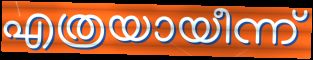
എത്രയായീന്ന്